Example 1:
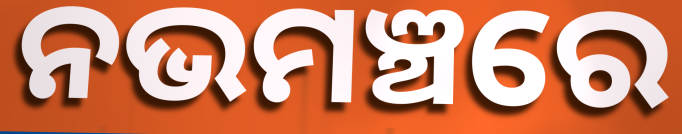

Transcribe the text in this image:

ନଭମଞ୍ଚରେ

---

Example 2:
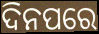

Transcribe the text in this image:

ଦିନପରେ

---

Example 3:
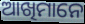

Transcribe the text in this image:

ଆଖିମାନେ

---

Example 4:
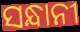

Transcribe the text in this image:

ସନ୍ଧାନୀ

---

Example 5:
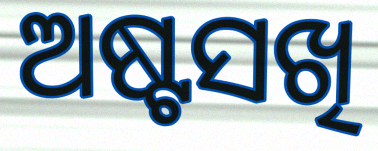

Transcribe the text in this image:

ଅଷ୍ଟସଖି